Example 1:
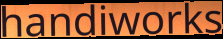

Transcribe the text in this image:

handiworks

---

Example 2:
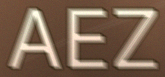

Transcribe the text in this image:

AEZ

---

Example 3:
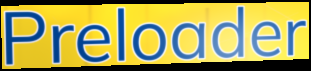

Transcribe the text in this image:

Preloader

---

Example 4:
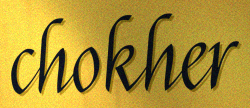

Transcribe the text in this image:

chokher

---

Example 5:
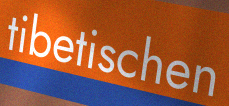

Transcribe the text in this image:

tibetischen